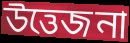
উত্তেজনা